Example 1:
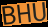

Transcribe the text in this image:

BHU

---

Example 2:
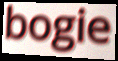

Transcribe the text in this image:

bogie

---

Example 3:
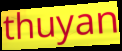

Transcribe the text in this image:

thuyan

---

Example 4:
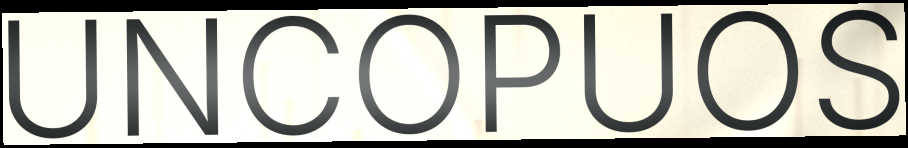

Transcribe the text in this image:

UNCOPUOS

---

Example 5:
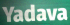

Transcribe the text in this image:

Yadava